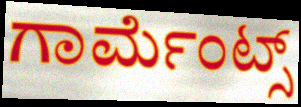
ಗಾರ್ಮೆಂಟ್ಸ್